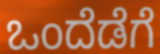
ಒಂದೆಡೆಗೆ